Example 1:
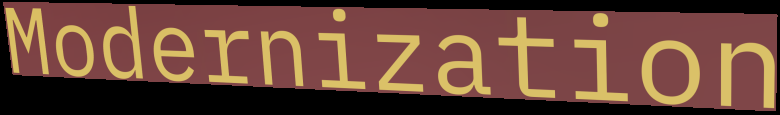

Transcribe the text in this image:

Modernization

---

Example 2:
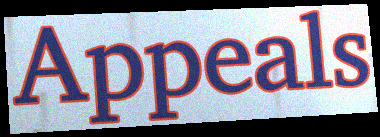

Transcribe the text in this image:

Appeals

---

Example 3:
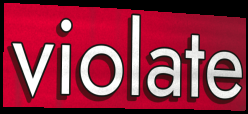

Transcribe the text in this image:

violate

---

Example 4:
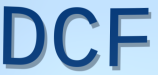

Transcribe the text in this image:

DCF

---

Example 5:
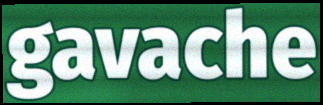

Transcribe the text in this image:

gavache